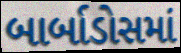
બાર્બાડોસમાં